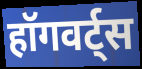
हॉगवर्ट्स